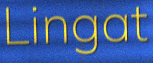
Lingat